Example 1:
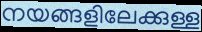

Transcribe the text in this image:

നയങ്ങളിലേക്കുള്ള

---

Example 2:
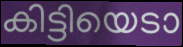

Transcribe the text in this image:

കിട്ടിയെടാ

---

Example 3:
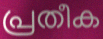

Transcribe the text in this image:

പ്രതീക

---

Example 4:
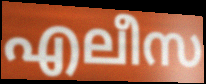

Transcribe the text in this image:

എലീസ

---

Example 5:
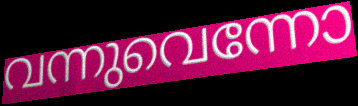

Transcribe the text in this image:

വന്നുവെന്നോ